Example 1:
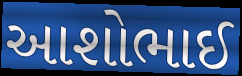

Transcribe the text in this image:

આશોભાઈ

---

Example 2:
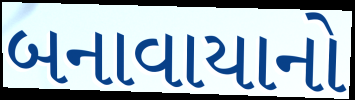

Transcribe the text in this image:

બનાવાયાનો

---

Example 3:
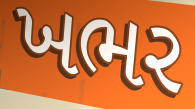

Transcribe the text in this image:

ખભર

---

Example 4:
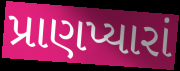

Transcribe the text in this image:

પ્રાણપ્યારાં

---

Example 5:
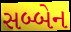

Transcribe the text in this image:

સબ્બેન